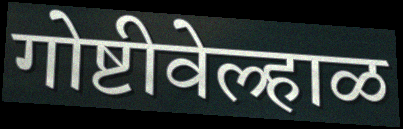
गोष्टीवेल्हाळ